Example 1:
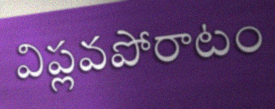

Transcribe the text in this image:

విప్లవపోరాటం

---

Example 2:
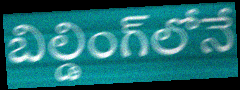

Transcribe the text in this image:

బిల్డింగ్‌లోనే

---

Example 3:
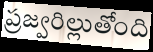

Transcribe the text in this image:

ప్రజ్వరిల్లుతోంది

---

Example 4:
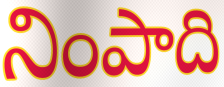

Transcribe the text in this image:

నింపాది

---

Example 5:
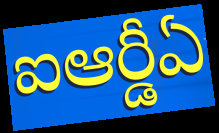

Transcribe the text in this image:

ఐఆర్డీఏ